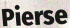
Pierse